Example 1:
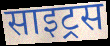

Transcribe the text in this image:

साइट्रस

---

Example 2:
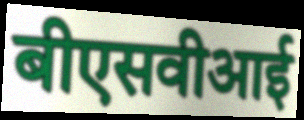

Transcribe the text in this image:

बीएसवीआई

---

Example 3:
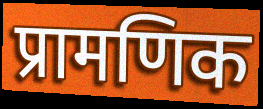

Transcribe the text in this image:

प्रामणिक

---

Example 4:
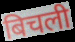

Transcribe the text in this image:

बिचली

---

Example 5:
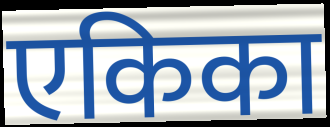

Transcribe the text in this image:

एकिका